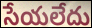
సేయలేదు